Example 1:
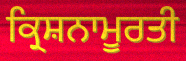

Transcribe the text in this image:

ਕ੍ਰਿਸ਼ਨਾਮੂਰਤੀ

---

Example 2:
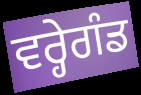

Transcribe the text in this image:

ਵਰ੍ਹੇਗੰਡ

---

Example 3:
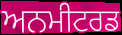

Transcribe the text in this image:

ਅਨਮੀਟਰਡ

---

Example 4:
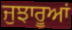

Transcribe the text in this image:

ਜੁਝਾਰੂਆਂ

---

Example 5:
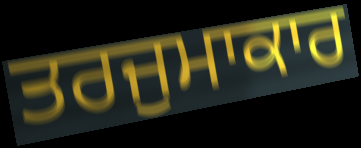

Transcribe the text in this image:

ਤਰਜੁਮਾਕਾਰ